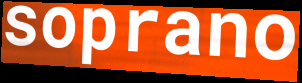
soprano